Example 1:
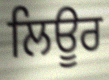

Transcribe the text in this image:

ਲਿਊਰ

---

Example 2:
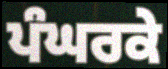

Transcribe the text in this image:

ਪੰਘਰਕੇ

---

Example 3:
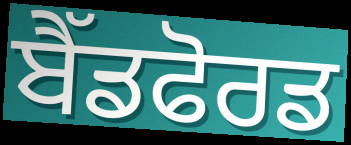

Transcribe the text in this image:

ਬੈੱਡਫੋਰਡ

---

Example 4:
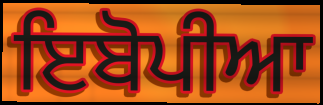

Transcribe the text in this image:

ਇਬੋਪੀਆ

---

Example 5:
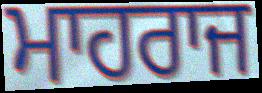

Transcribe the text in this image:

ਮਾਹਰਾਜ